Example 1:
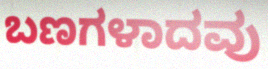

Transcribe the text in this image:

ಬಣಗಳಾದವು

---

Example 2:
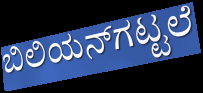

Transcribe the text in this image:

ಬಿಲಿಯನ್‌ಗಟ್ಟಲೆ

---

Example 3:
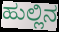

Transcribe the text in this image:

ಹುಲ್ಲಿನ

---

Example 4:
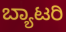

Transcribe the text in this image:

ಬ್ಯಾಟರಿ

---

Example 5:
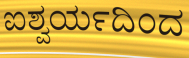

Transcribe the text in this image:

ಐಶ್ವರ್ಯದಿಂದ